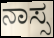
ನಾಸ್ಸ